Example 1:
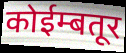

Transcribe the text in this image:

कोईम्बतूर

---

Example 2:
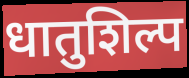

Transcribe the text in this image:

धातुशिल्प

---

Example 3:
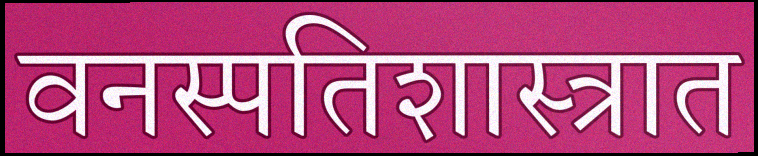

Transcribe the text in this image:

वनस्पतिशास्त्रात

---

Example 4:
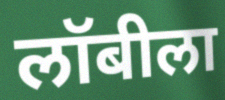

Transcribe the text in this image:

लॉबीला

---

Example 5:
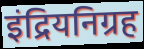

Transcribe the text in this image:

इंद्रियनिग्रह